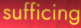
sufficing